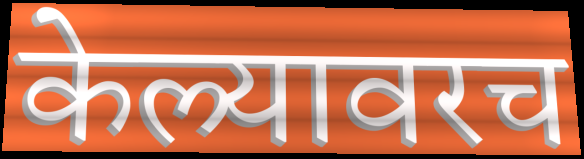
केल्यावरच